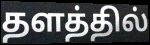
தளத்தில்